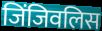
जिंजिवलिस